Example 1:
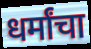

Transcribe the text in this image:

धर्मांचा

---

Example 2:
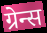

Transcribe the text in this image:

ग्रेन्स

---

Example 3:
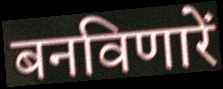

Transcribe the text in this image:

बनविणारें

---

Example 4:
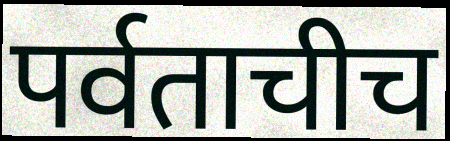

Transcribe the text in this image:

पर्वताचीच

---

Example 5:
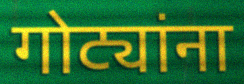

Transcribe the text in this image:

गोट्यांना